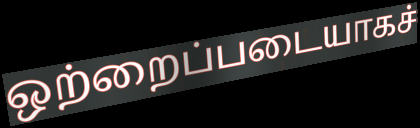
ஒற்றைப்படையாகச்